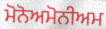
ਮੋਨੋਅਮੋਨੀਅਮ